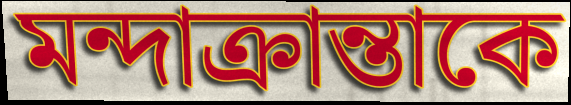
মন্দাক্রান্তাকে